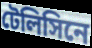
টেলিসিনে